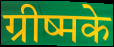
ग्रीष्मके